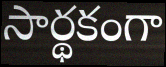
సార్థకంగా